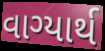
વાગ્યાર્થ